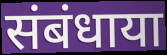
संबंधाया